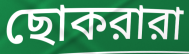
ছোকরারা